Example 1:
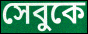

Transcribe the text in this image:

সেবুকে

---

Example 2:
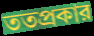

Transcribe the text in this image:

ততপ্রকার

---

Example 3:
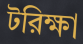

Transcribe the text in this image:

টরিক্ষা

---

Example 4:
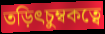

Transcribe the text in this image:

তড়িৎচুম্বকত্বে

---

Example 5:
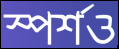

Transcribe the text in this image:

স্পর্শও